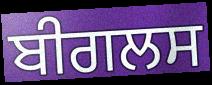
ਬੀਗਲਸ